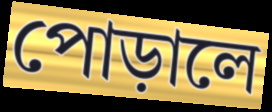
পোড়ালে